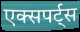
एक्‍सपर्ट्स